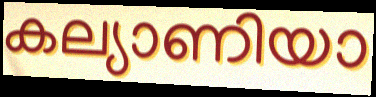
കല്യാണിയാ